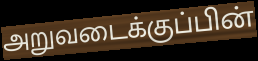
அறுவடைக்குப்பின்